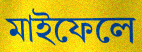
মাইফেলে